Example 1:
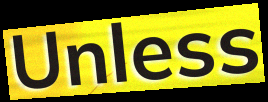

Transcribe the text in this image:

Unless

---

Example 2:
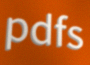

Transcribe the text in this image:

pdfs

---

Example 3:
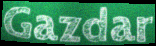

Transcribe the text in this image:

Gazdar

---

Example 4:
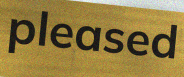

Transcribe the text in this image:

pleased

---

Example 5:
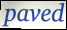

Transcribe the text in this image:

paved